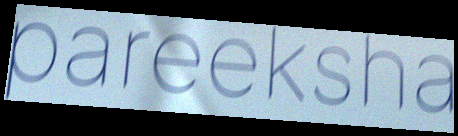
pareeksha